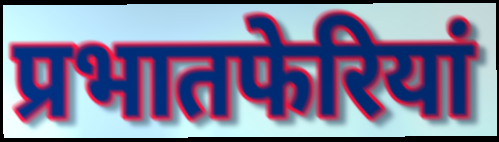
प्रभातफेरियां